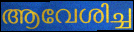
ആവേശിച്ച